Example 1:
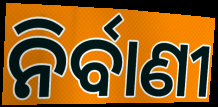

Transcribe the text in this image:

ନିର୍ବାଣୀ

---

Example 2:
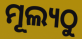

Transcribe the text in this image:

ମୂଲ୍ୟଠୁ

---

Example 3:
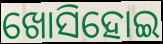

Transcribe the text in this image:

ଖୋସିହୋଇ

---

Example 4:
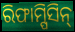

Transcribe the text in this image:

ରିଫାମ୍ପିସିନ୍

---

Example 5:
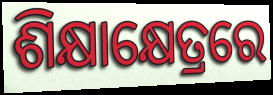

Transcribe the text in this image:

ଶିକ୍ଷାକ୍ଷେତ୍ରରେ